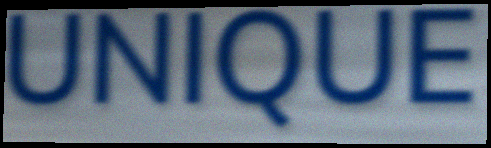
UNIQUE